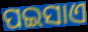
ପଇସାଏ